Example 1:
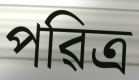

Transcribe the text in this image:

পৱিত্ৰ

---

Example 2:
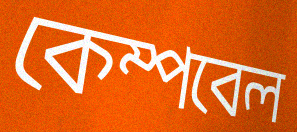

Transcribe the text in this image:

কেম্পবেল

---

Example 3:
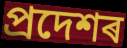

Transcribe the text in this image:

প্ৰদেশৰ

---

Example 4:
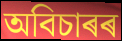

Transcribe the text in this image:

অবিচাৰৰ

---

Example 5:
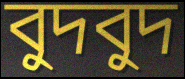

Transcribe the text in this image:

বুদবুদ